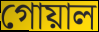
গোয়াল